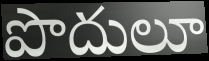
పొదులూ